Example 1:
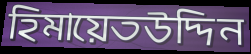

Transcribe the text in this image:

হিমায়েতউদ্দিন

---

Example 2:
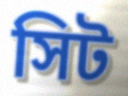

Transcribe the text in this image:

সিট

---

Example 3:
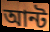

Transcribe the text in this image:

আন্ট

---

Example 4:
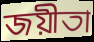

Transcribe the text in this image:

জয়ীতা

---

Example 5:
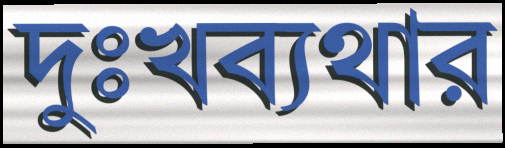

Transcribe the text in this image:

দুঃখব্যথার